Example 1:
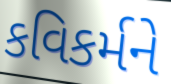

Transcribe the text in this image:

કવિકર્મને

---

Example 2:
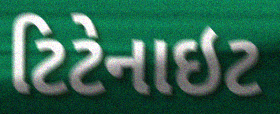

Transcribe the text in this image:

ટિટેનાઇટ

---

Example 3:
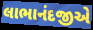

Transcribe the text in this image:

લાભાનંદજીએ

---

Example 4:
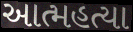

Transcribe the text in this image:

આત્મહત્યા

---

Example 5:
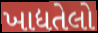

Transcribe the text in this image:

ખાદ્યતેલો